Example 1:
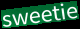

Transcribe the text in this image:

sweetie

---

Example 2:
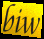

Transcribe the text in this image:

biw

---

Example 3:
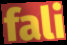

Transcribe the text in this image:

fali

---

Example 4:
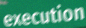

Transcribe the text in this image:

execution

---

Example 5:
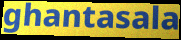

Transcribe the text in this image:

ghantasala